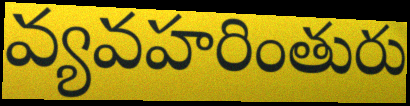
వ్యవహరింతురు